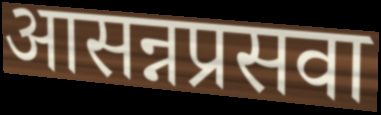
आसन्नप्रसवा